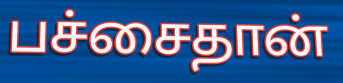
பச்சைதான்